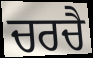
ਚਰਚੈ